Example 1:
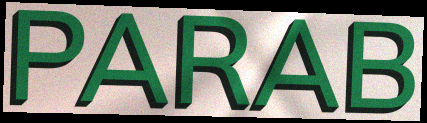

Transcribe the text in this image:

PARAB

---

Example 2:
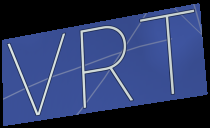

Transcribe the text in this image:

VRT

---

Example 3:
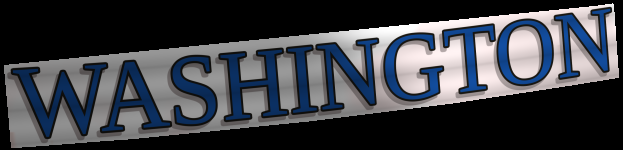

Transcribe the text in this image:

WASHINGTON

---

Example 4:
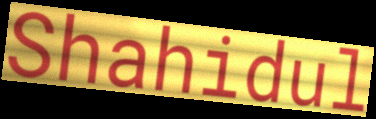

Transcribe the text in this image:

Shahidul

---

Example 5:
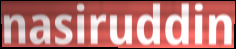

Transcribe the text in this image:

nasiruddin